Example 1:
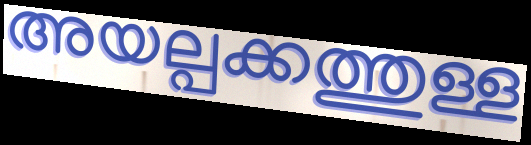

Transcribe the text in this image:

അയല്പക്കത്തുള്ള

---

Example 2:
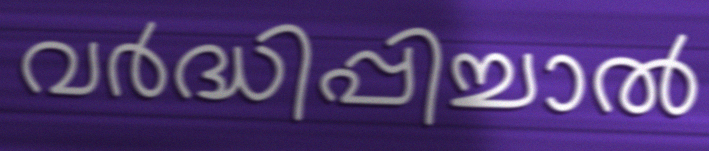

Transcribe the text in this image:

വർദ്ധിപ്പിച്ചാൽ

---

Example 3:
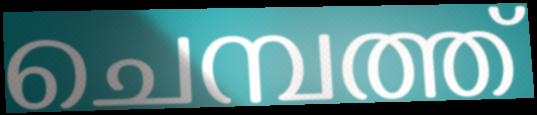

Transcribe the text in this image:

ചെമ്പത്ത്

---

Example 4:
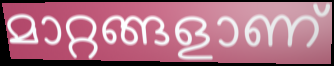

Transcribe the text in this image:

മാറ്റങ്ങളാണ്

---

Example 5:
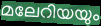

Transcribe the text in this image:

മലേറിയയും